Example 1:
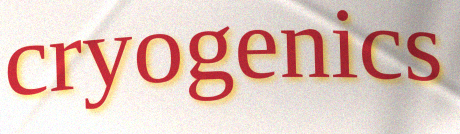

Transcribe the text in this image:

cryogenics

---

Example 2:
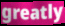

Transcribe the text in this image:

greatly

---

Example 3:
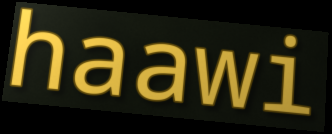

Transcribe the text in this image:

haawi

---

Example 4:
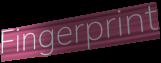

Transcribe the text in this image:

Fingerprint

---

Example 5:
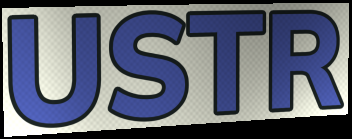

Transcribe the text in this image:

USTR